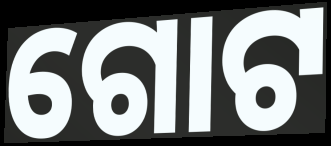
ଗୋଟ